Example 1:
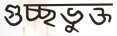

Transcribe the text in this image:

গুচ্ছভুক্ত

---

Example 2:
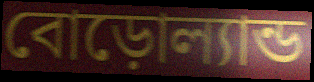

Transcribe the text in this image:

বোড়োল্যান্ড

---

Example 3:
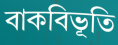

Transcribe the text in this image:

বাকবিভূতি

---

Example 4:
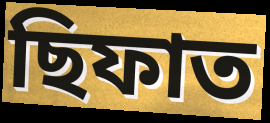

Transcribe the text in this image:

ছিফাত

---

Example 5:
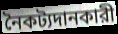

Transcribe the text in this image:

নৈকট্যদানকারী